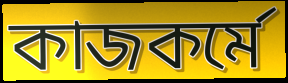
কাজকর্মে